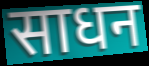
साधन